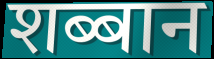
शब्बान